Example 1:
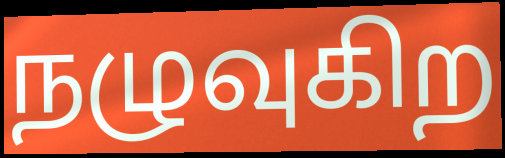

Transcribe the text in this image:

நழுவுகிற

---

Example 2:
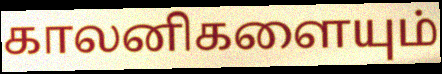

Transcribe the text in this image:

காலனிகளையும்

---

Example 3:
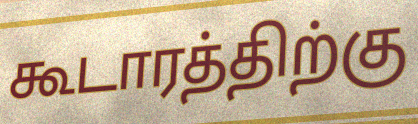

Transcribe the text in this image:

கூடாரத்திற்கு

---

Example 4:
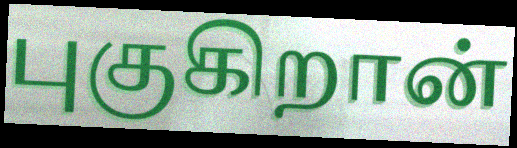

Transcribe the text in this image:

புகுகிறான்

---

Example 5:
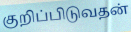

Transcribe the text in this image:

குறிப்பிடுவதன்